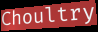
Choultry